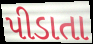
પીડાતા